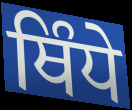
ਥਿੰਧੇ